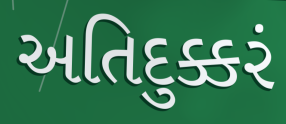
અતિદુક્કરં